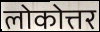
लोकोत्तर